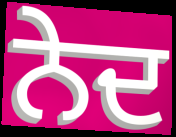
ਨੇਦ